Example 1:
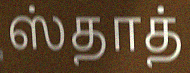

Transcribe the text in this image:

ஸ்தாத்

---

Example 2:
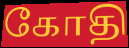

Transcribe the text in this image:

கோதி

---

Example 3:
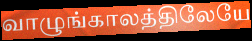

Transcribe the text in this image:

வாழுங்காலத்திலேயே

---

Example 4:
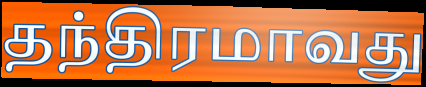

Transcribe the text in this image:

தந்திரமாவது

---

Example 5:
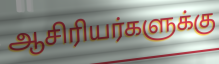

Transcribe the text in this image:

ஆசிரியர்களுக்கு